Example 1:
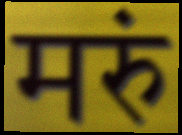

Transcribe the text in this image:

मरुं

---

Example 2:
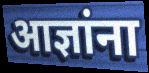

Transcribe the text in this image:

आज्ञांना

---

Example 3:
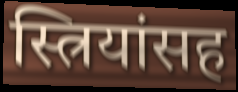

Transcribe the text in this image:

स्त्रियांसह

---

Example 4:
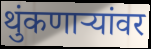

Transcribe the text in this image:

थुंकणाऱ्यांवर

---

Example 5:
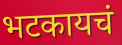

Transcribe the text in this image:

भटकायचं